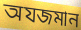
অযজমান